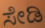
ಸೇಡಿ